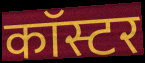
कॉस्टर